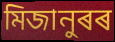
মিজানুৰৰ